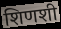
शिणशी